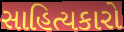
સાહિત્યકારો